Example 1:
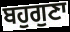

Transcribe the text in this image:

ਬਹੁਗੁਣਾ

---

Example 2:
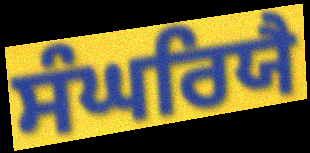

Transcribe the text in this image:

ਸੰਘਰਿਯੈ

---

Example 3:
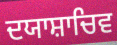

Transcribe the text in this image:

ਦਯਾਸ਼ਾਚਿਵ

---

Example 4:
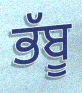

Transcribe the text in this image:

ਭੱਬੂ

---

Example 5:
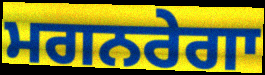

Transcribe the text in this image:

ਮਗਨਰੇਗਾ